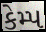
કેમ્પ